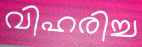
വിഹരിച്ച